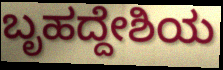
ಬೃಹದ್ದೇಶಿಯ